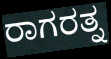
ರಾಗರತ್ನ